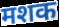
मशक